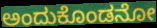
ಅಂದುಕೊಂಡನೋ